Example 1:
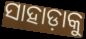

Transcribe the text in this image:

ସାହାଡ଼ାକୁ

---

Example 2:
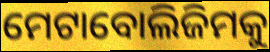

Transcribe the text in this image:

ମେଟାବୋଲିଜିମକୁ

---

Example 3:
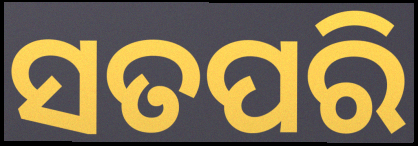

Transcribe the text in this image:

ସତପରି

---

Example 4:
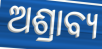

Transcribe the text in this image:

ଅଶ୍ରାବ୍ୟ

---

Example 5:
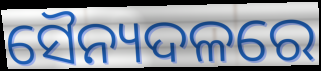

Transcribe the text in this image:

ସୈନ୍ୟଦଳରେ